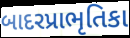
બાદરપ્રાભૃતિકા